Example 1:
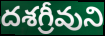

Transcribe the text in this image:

దశగ్రీవుని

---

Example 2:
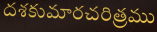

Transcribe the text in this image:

దశకుమారచరిత్రము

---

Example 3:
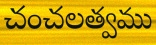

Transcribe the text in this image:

చంచలత్వము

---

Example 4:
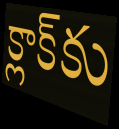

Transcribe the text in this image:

క్లాక్‌కు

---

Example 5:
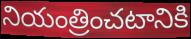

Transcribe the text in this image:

నియంత్రించటానికి